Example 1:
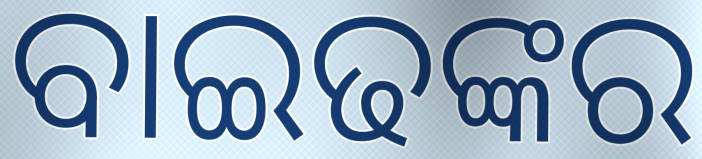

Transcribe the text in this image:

ବାଇଢଙ୍କର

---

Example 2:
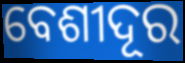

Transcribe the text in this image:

ବେଶୀଦୂର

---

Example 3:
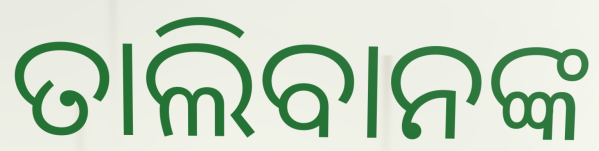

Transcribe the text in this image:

ତାଲିବାନଙ୍କ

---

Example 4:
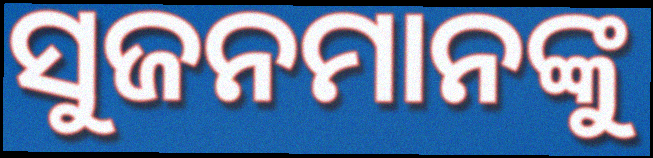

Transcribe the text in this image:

ସୁଜନମାନଙ୍କୁ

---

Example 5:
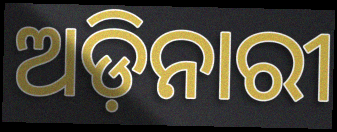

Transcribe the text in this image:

ଅଡ଼ିନାରୀ